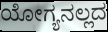
ಯೋಗ್ಯನಲ್ಲದ